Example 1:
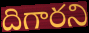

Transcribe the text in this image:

దిగారని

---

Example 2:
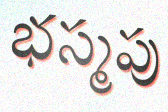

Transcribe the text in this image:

భస్మపు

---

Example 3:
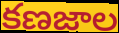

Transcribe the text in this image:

కణజాల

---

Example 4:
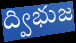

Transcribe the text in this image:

ద్విభుజ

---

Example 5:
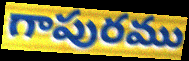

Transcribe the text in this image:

గాపురము